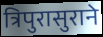
त्रिपुरासुराने